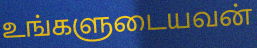
உங்களுடையவன்